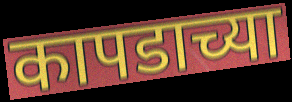
कापडाच्या